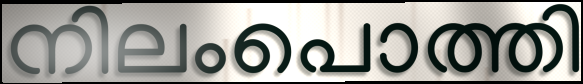
നിലംപൊത്തി